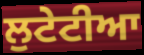
ਲੁਟੇਟੀਆ